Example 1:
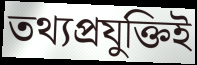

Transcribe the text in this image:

তথ্যপ্রযুক্তিই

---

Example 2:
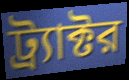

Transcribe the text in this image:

ট্র্যাক্টর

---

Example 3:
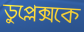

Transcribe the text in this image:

ডুপ্লেক্সকে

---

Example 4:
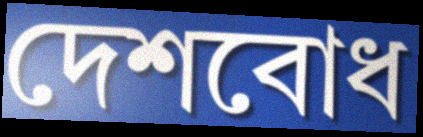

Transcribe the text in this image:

দেশবোধ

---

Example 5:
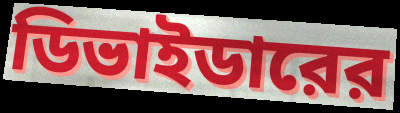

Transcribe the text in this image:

ডিভাইডারের